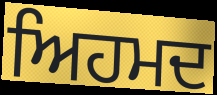
ਅਿਹਮਦ